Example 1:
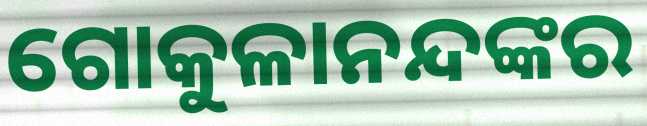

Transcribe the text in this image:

ଗୋକୁଳାନନ୍ଦଙ୍କର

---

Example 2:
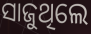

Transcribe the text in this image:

ସାଜୁଥିଲେ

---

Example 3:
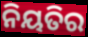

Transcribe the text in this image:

ନିୟତିର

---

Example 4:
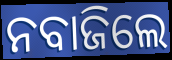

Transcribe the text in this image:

ନବାଜିଲେ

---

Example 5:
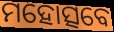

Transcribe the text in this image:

ମହୋତ୍ସବେ